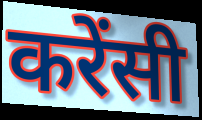
करेंसी